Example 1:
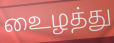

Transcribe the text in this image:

உைழத்து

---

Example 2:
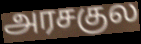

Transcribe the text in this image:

அரசகுல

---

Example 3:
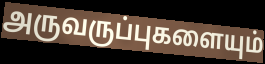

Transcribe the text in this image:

அருவருப்புகளையும்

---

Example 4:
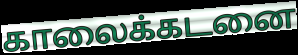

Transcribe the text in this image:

காலைக்கடனை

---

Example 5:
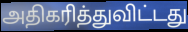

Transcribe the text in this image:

அதிகரித்துவிட்டது